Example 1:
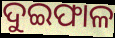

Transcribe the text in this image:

ଦୁଇଫାଳ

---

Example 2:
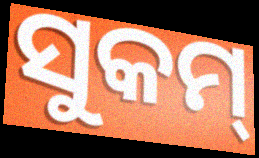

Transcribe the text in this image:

ସୁକମ୍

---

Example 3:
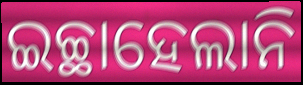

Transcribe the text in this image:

ଇଚ୍ଛାହେଲାନି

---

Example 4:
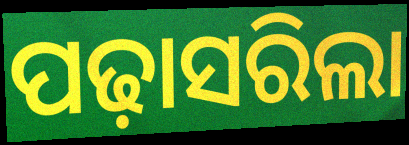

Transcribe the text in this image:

ପଢ଼ାସରିଲା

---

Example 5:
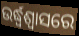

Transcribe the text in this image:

ଉର୍ଦ୍ଧ୍ଵଶ୍ୱାସରେ